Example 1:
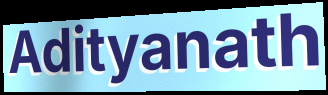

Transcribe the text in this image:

Adityanath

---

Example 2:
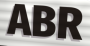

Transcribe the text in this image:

ABR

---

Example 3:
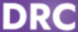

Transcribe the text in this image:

DRC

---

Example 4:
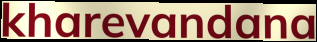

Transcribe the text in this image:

kharevandana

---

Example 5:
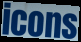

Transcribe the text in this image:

icons